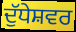
ਦੁੱਧੇਸ਼ਵਰ